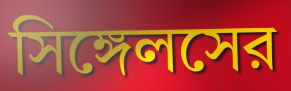
সিঙ্গেলসের